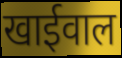
खाईवाल